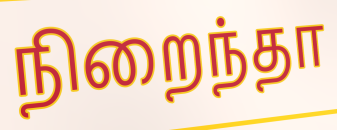
நிறைந்தா